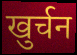
खुर्चन